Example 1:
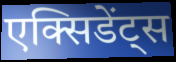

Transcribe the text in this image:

एक्सिडेंट्स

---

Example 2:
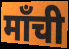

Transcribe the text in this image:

माँची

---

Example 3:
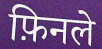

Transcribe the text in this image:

फ़िनले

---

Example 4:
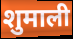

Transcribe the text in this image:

शुमाली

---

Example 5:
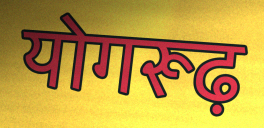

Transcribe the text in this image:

योगरूढ़